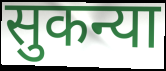
सुकन्या